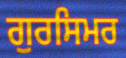
ਗੁਰਸਿਮਰ